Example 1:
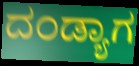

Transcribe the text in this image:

ದಂಡ್ಯಾಗ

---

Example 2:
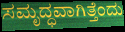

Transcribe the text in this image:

ಸಮೃದ್ಧವಾಗಿತ್ತೆಂದು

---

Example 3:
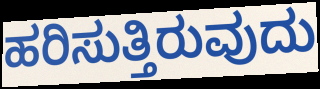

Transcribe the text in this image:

ಹರಿಸುತ್ತಿರುವುದು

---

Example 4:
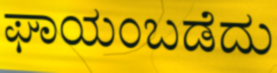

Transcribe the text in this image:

ಘಾಯಂಬಡೆದು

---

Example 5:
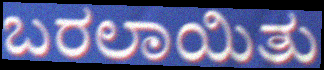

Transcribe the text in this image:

ಬರಲಾಯಿತು